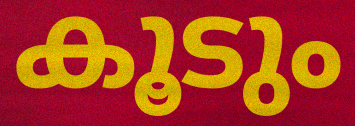
കൂടും